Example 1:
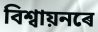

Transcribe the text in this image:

বিশ্বায়নৰে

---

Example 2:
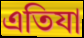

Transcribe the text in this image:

এতিযা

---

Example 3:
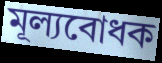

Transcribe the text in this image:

মূল্যবোধক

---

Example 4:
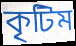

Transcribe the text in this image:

কৃটিম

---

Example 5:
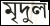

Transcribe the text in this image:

মৃদুল